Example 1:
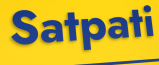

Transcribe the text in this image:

Satpati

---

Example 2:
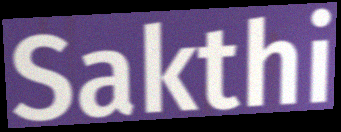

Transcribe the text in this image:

Sakthi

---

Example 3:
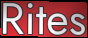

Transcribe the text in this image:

Rites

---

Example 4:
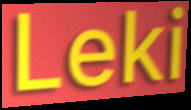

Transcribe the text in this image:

Leki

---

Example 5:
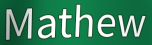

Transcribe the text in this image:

Mathew